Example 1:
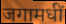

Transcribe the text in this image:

जगामधीं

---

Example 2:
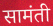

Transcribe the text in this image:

सामंती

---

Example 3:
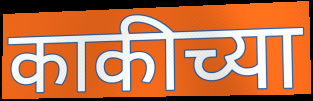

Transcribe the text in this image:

काकीच्या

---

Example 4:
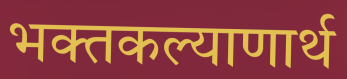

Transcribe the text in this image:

भक्तकल्याणार्थ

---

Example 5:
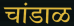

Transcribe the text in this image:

चांडाळ